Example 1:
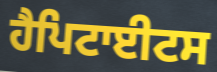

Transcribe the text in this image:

ਹੈਪਿਟਾਈਟਸ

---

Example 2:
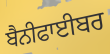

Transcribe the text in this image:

ਬੈਨੀਫਾਈਬਰ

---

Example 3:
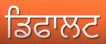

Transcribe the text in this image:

ਡਿਫਾਲਟ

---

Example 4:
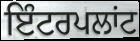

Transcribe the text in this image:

ਇੰਟਰਪਲਾਂਟ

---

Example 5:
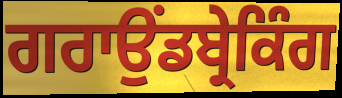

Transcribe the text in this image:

ਗਰਾਉਂਡਬ੍ਰੇਕਿੰਗ